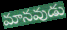
మానవుడు